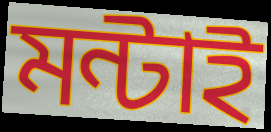
মন্টাই